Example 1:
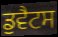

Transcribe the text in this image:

ਡੁਵੈਟਸ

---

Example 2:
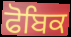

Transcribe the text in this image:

ਫੋਬਿਕ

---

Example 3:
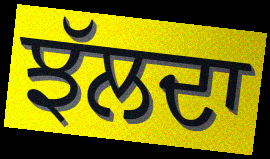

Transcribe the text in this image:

ਝੱਲਦਾ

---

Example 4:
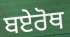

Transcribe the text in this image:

ਬਏਰੋਥ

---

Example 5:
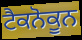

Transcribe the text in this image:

ਟੈਕਨੋਕੂਨ